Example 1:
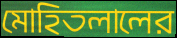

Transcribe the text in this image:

মোহিতলালের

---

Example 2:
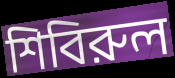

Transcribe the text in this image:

শিবিরুল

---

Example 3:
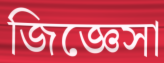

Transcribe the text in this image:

জিজ্ঞেসা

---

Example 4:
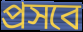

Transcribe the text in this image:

প্রসবে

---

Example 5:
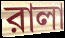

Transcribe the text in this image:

রালা